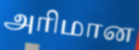
அரிமான